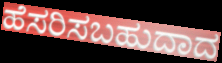
ಹೆಸರಿಸಬಹುದಾದ